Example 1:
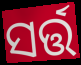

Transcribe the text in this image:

ସର୍ତ୍ତ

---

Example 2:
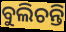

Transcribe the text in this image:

ବୁଲିଚନ୍ତି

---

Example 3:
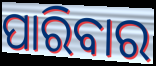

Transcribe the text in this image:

ପାରିବାର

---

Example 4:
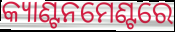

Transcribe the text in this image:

କ୍ୟାଣ୍ଟନମେଣ୍ଟରେ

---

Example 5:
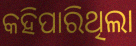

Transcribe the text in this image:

କହିପାରିଥିଲା